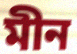
মীন